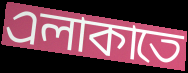
এলাকাতে